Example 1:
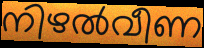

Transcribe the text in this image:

നിഴൽവീണ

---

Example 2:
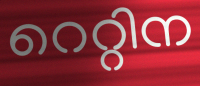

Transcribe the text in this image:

റെറ്റിന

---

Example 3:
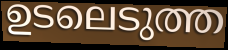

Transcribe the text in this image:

ഉടലെടുത്ത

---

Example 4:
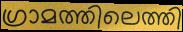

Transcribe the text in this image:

ഗ്രാമത്തിലെത്തി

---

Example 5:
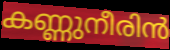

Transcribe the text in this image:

കണ്ണുനീരിൻ